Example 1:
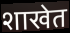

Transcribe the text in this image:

शाखेत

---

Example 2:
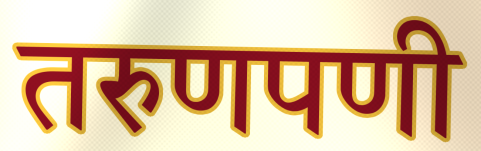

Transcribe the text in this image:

तरुणपणी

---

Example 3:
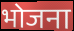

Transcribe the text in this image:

भोजना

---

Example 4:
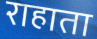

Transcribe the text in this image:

राहाता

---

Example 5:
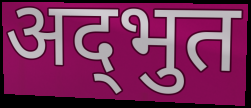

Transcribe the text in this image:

अद्‌भुत